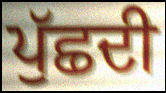
ਪੁੱਛਦੀ